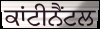
ਕਾਂਟੀਨੈਂਟਲ